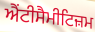
ਐਂਟੀਸੈਮੀਟਿਜ਼ਮ